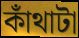
কাঁথাটা